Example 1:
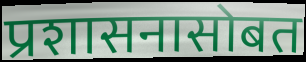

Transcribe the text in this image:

प्रशासनासोबत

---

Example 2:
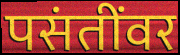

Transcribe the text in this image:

पसंतींवर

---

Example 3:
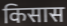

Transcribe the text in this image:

किसास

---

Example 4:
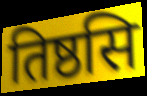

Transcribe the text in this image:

तिष्ठसि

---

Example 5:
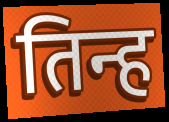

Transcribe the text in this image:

तिन्ह